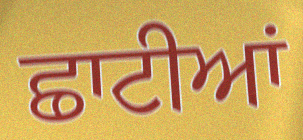
ਛਾਟੀਆਂ